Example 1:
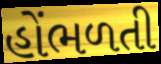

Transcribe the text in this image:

હોંભળતી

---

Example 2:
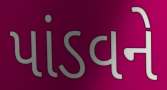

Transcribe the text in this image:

પાંડવને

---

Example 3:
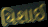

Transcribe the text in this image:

યિશાઈ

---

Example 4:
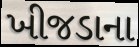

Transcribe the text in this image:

ખીજડાના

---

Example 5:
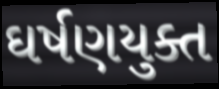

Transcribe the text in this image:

ઘર્ષણયુક્ત